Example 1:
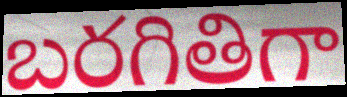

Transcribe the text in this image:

బరగితిగా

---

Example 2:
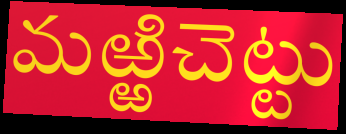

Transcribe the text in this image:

మఱ్ఱిచెట్టు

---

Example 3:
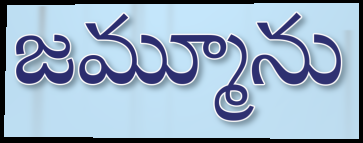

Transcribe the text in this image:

జమ్మూను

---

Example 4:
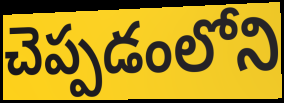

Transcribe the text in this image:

చెప్పడంలోని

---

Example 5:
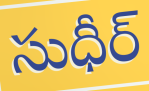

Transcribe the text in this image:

సుధీర్